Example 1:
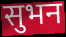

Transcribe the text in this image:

सुभन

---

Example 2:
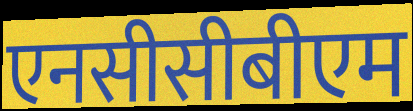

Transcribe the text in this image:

एनसीसीबीएम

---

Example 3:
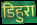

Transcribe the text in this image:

डिहुरा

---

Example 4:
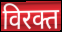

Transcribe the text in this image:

विरक्त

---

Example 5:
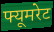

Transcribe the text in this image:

फ्यूमरेट